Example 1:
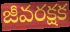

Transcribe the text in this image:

జీవరక్షక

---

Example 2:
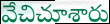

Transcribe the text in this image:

వేచిచూశారు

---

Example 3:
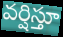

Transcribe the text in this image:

వర్షిస్తూ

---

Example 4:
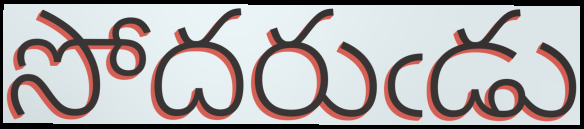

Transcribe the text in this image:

సోదరుఁడు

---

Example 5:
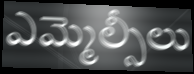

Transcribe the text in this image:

ఎమ్మెల్సీలు